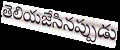
తెలియజేసినప్పుడు